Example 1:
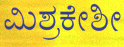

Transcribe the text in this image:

ಮಿಶ್ರಕೇಶೀ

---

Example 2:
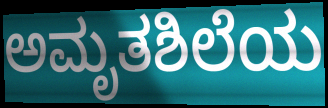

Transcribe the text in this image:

ಅಮೃತಶಿಲೆಯ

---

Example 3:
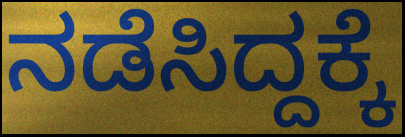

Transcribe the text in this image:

ನಡೆಸಿದ್ದಕ್ಕೆ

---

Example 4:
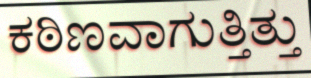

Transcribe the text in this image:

ಕಠಿಣವಾಗುತ್ತಿತ್ತು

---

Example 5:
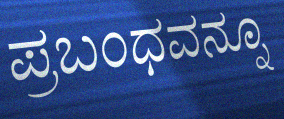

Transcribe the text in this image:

ಪ್ರಬಂಧವನ್ನೂ